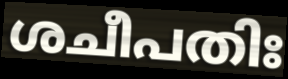
ശചീപതിഃ